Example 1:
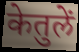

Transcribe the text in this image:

केतुलें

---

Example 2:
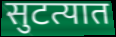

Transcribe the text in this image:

सुटत्यात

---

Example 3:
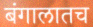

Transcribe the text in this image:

बंगालातच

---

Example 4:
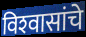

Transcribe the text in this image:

विश्‍वासांचे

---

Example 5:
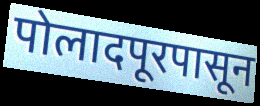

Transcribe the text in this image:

पोलादपूरपासून